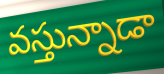
వస్తున్నాడా